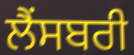
ਲੈਂਸਬਰੀ